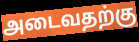
அடைவதற்கு